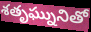
శతృఘ్నునితో